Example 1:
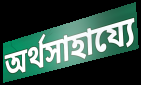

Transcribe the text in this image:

অর্থসাহায্যে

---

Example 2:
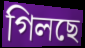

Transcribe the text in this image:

গিলছে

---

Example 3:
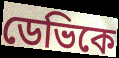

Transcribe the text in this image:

ডেভিকে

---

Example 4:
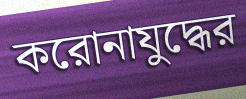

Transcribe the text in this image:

করোনাযুদ্ধের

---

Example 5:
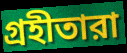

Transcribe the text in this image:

গ্রহীতারা